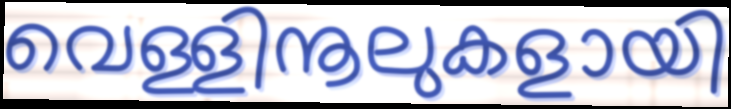
വെള്ളിനൂലുകളായി